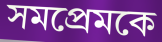
সমপ্রেমকে